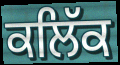
ਕਲਿੱਕ